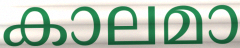
കാലമാ